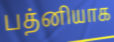
பத்னியாக